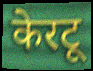
केरटू